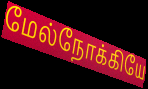
மேல்நோக்கியே